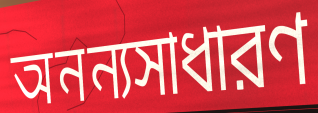
অনন্যসাধারণ